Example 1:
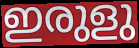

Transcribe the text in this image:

ഇരുളു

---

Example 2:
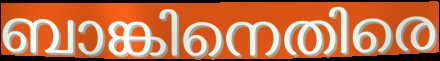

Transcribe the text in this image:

ബാങ്കിനെതിരെ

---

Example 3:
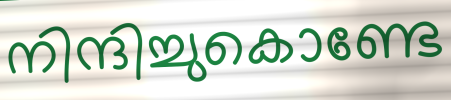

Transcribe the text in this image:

നിന്ദിച്ചുകൊണ്ടേ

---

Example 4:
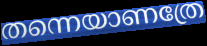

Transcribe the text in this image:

തന്നെയാണത്രേ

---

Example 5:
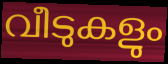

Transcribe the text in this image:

വീടുകളും